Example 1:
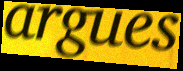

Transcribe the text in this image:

argues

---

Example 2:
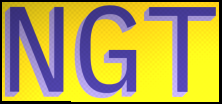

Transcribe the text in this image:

NGT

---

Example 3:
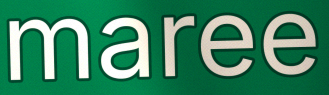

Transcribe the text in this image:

maree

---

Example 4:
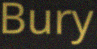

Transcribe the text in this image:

Bury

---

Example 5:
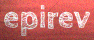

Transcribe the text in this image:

epirev